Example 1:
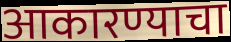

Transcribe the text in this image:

आकारण्याचा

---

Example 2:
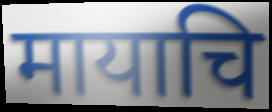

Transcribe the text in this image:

मायाचि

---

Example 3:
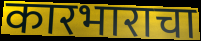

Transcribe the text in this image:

कारभाराचा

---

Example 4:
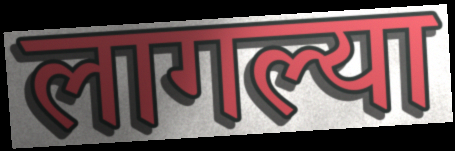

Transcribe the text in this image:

लागल्या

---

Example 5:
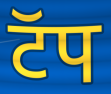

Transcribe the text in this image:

टॅप